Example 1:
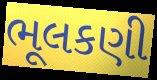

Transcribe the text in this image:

ભૂલકણી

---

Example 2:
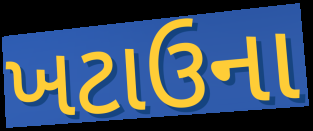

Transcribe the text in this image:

ખટાઉના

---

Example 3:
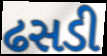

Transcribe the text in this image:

ઢસડી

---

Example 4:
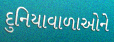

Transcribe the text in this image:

દુનિયાવાળાઓને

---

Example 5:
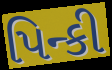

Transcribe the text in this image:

પિન્કી